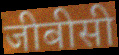
जीबीसी